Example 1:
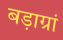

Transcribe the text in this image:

बड़ाग्रां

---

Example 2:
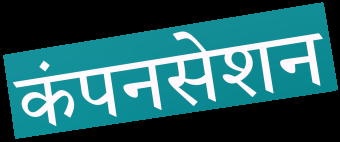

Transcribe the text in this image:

कंपनसेशन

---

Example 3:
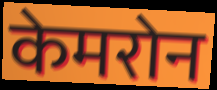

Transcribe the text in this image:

केमरोन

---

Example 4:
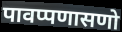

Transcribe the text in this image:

पावप्पणासणो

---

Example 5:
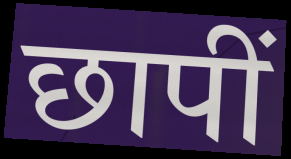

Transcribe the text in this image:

छापीं